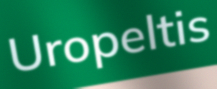
Uropeltis